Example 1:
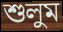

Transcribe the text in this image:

শুলুম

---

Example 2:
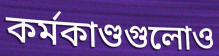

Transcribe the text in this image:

কর্মকাণ্ডগুলোও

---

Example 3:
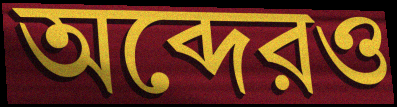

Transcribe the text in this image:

অব্দেরও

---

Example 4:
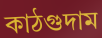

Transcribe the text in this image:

কাঠগুদাম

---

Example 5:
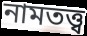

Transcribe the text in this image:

নামতত্ত্ব